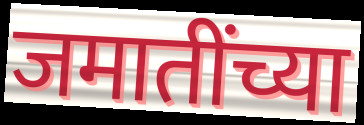
जमातींच्या